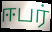
ஈபர்